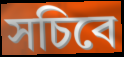
সচিবে